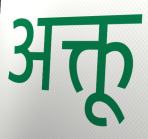
अक्तू